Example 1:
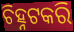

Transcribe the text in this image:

ଚିହ୍ନଟକରି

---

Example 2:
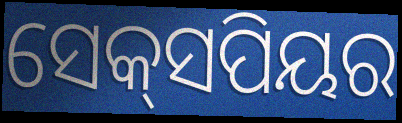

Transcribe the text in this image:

ସେକ୍‍ସପିୟର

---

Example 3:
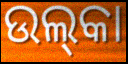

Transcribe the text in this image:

ଉଲ୍‌କା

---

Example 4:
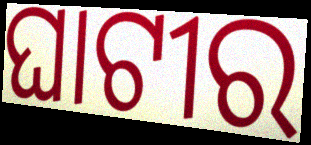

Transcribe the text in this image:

ଘାଟୀର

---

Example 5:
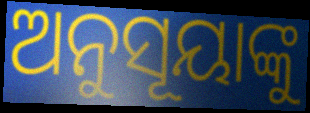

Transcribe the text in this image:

ଅନୁସୂୟାଙ୍କୁ